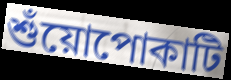
শুঁয়োপোকাটি